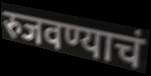
रुजवण्याचं